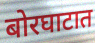
बोरघाटात